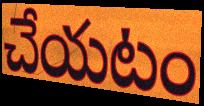
చేయటం